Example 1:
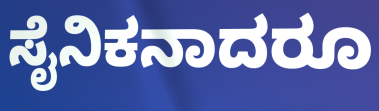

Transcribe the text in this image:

ಸೈನಿಕನಾದರೂ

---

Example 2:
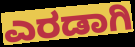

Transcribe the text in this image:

ಎರಡಾಗಿ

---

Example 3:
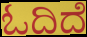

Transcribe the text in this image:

ಓದಿದೆ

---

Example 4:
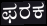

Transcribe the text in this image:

ಫರಕ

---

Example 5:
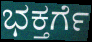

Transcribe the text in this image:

ಭಕ್ತರ್ಗೆ